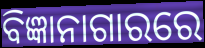
ବିଜ୍ଞାନାଗାରରେ